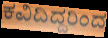
ಕವಿದಿದ್ದರಿಂದ